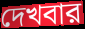
দেখবার